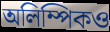
অলিম্পিকও